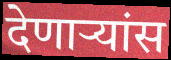
देणाऱ्यांस